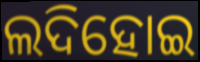
ଲଦିହୋଇ